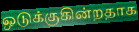
ஒடுக்குகின்றதாக